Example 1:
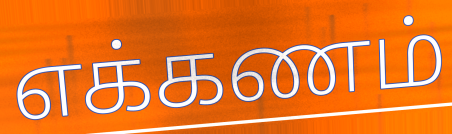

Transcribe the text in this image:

எக்கணம்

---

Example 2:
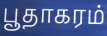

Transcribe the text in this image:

பூதாகரம்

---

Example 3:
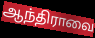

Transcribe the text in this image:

ஆந்திராவை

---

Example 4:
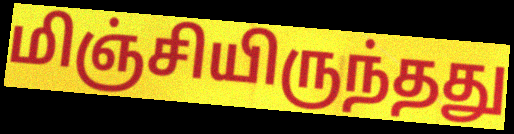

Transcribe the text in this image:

மிஞ்சியிருந்தது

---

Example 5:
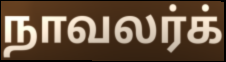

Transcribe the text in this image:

நாவலர்க்